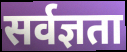
सर्वज्ञता